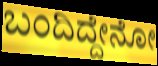
ಬಂದಿದ್ದೇನೋ